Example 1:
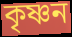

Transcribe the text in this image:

কৃষ্ণন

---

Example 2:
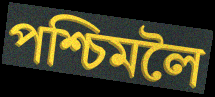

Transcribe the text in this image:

পশ্চিমলৈ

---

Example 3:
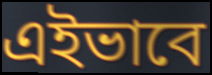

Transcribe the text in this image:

এইভাবে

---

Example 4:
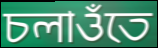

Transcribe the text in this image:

চলাওঁতে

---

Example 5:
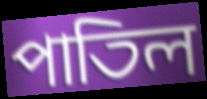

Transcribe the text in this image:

পাতিল